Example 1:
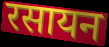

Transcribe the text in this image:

रसायन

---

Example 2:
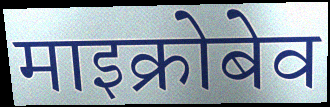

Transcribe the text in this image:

माइक्रोबेव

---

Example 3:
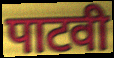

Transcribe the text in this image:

पाटवी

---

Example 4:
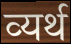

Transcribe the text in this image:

व्‍यर्थ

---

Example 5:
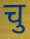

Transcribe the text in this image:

चु